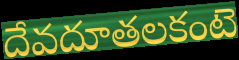
దేవదూతలకంటె